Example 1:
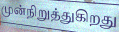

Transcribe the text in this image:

முன்நிறுத்துகிறது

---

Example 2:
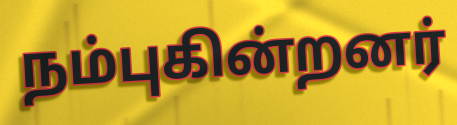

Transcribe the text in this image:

நம்புகின்றனர்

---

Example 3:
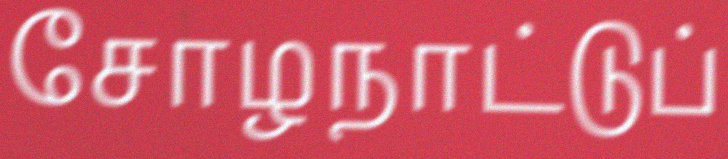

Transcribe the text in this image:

சோழநாட்டுப்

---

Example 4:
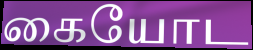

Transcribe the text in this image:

கையோட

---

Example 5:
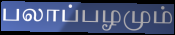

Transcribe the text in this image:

பலாப்பழமும்